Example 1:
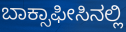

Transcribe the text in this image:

ಬಾಕ್ಸಾಫೀಸಿನಲ್ಲಿ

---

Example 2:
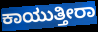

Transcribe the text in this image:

ಕಾಯುತ್ತೀರಾ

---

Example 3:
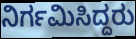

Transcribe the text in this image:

ನಿರ್ಗಮಿಸಿದ್ದರು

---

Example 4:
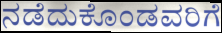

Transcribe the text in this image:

ನಡೆದುಕೊಂಡವರಿಗೆ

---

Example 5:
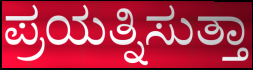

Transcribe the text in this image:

ಪ್ರಯತ್ನಿಸುತ್ತಾ